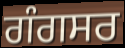
ਗੰਗਸਰ